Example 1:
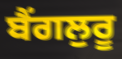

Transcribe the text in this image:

ਬੈਂਗਲੁਰੂ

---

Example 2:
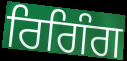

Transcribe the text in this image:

ਰਿਗਿੰਗ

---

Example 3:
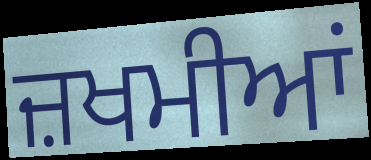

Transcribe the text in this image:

ਜ਼ਖਮੀਆਂ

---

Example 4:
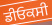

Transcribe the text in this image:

ਡੀਓਕਸੀ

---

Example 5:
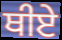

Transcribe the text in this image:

ਥੀਏ